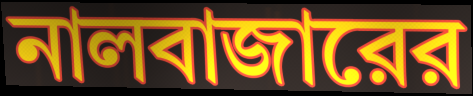
নালবাজারের